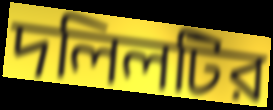
দলিলটির